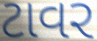
ટાવર